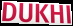
DUKHI